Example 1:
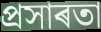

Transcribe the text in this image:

প্ৰসাৰতা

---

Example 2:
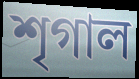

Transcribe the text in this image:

শৃগাল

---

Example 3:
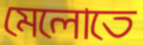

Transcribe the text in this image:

মেলোতে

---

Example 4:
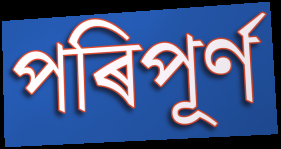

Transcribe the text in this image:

পৰিপূৰ্ণ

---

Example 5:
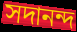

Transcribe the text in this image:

সদানন্দ